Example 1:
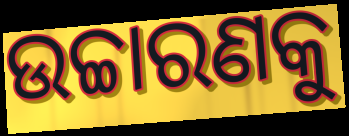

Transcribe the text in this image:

ଉଚ୍ଚାରଣକୁ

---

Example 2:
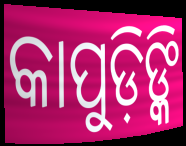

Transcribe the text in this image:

କାପୁଡ଼ିଙ୍କି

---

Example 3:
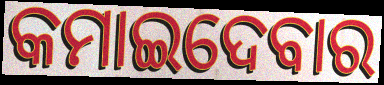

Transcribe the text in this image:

କମାଇଦେବାର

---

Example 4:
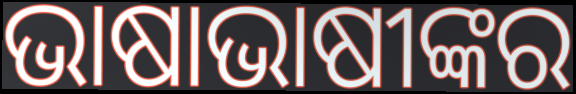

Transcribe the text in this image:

ଭାଷାଭାଷୀଙ୍କର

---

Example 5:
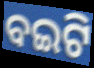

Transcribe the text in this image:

ବଇଟି